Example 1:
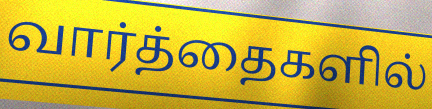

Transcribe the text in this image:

வார்த்தைகளில்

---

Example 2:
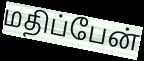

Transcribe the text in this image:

மதிப்பேன்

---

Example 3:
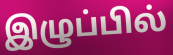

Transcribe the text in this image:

இழுப்பில்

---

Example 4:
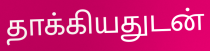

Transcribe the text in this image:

தாக்கியதுடன்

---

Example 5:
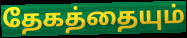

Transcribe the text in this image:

தேகத்தையும்